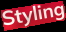
Styling